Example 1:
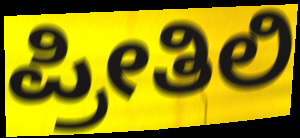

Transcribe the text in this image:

ಪ್ರೀತಿಲಿ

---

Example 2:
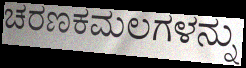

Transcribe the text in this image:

ಚರಣಕಮಲಗಳನ್ನು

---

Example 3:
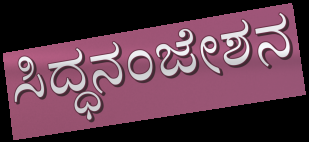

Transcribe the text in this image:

ಸಿದ್ಧನಂಜೇಶನ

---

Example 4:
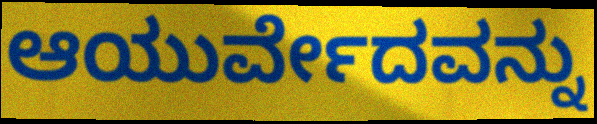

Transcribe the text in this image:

ಆಯುರ್ವೇದವನ್ನು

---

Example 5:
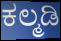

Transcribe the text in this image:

ಕಲ್ಮಡಿ